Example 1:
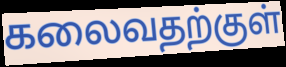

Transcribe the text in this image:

கலைவதற்குள்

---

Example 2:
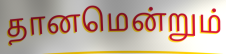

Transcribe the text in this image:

தானமென்றும்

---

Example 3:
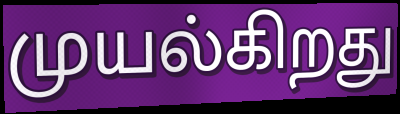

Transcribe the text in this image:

முயல்கிறது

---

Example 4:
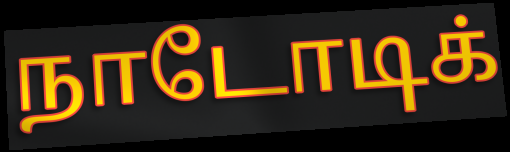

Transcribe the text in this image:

நாடோடிக்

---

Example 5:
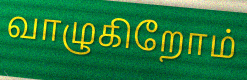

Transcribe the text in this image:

வாழுகிறோம்